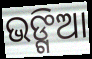
ଭଙ୍ଗିଆ